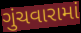
ગુંચવારામાં